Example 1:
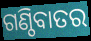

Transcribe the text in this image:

ଗଣ୍ଠିବାତର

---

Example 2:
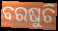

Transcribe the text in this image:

ବରଷୁଚି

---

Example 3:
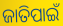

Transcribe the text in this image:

ଜାତିପାଇଁ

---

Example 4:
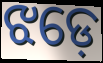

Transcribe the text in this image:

ଝଡ଼େ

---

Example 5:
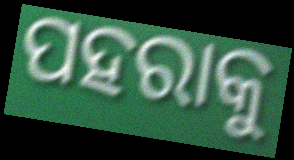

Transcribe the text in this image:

ପହରାକୁ